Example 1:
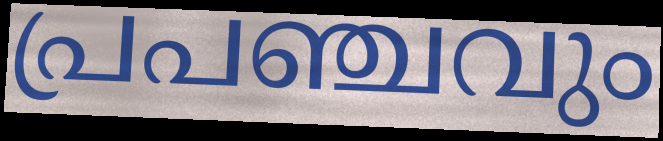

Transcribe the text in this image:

പ്രപഞ്ചവും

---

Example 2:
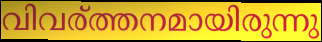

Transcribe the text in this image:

വിവര്ത്തനമായിരുന്നു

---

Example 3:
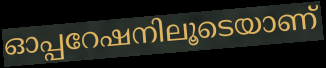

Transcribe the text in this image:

ഓപ്പറേഷനിലൂടെയാണ്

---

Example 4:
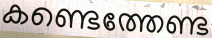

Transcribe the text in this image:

കണ്ടെത്തേണ്ട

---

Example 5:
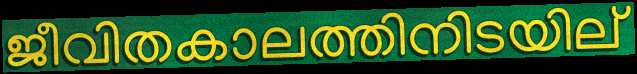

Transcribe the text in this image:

ജീവിതകാലത്തിനിടയില്